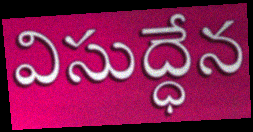
విసుద్ధేన